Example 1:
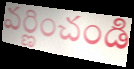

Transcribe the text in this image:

వర్ణించండి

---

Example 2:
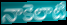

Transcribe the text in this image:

నాకెలాటి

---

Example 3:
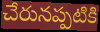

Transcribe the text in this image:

చేరునప్పటికి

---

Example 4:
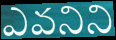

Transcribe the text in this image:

ఎవనిని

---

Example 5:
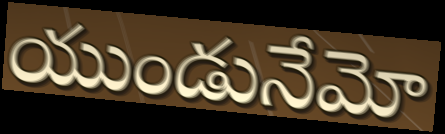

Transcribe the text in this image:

యుండునేమో